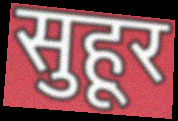
सुहूर